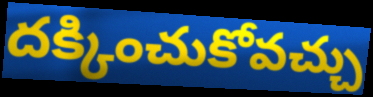
దక్కించుకోవచ్చు